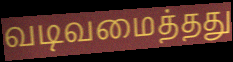
வடிவமைத்தது